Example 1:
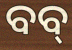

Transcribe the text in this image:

ବବ୍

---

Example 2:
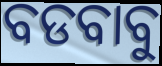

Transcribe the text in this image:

ବଡବାବୁ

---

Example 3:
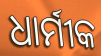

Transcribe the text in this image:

ଧାର୍ମୀକ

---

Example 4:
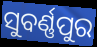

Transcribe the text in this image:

ସୁବର୍ଣ୍ଣପୁର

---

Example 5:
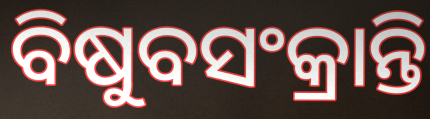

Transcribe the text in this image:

ବିଷୁବସଂକ୍ରାନ୍ତି